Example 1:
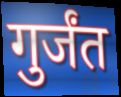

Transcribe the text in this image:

गुर्जंत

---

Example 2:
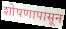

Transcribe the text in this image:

शोषणापासून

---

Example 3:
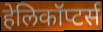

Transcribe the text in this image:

हेलिकॉप्टर्स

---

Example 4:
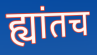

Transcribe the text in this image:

ह्यांतच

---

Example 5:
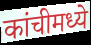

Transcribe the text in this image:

कांचीमध्ये